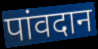
पांवदान